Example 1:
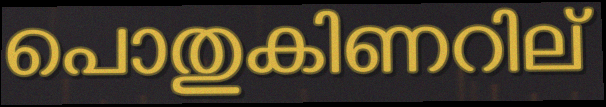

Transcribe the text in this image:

പൊതുകിണറില്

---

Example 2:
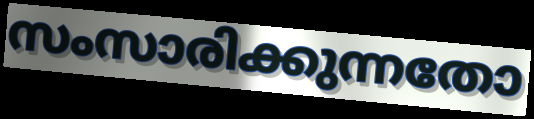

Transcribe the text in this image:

സംസാരിക്കുന്നതോ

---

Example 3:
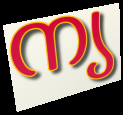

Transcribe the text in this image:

ന്യ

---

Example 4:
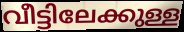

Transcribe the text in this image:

വീട്ടിലേക്കുള്ള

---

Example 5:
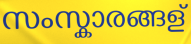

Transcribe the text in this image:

സംസ്കാരങ്ങള്